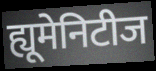
ह्यूमेनिटीज